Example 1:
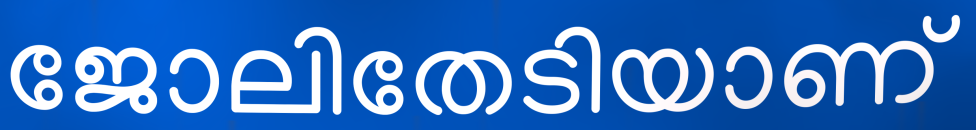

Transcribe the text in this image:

ജോലിതേടിയാണ്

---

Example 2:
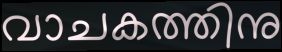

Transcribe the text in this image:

വാചകത്തിനു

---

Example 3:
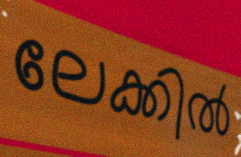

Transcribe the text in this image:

ലേക്കിൽ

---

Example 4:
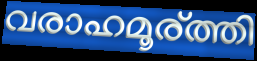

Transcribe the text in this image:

വരാഹമൂര്ത്തി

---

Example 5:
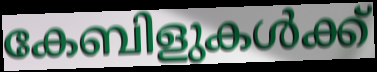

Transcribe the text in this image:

കേബിളുകൾക്ക്